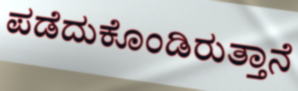
ಪಡೆದುಕೊಂಡಿರುತ್ತಾನೆ